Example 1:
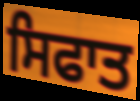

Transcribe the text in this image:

ਸਿਫਾਤ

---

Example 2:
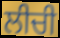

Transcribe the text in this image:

ਲੀਚੀ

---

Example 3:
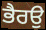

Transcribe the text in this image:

ਭੈਰਉ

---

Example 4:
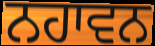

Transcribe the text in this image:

ਨਹਾਵਨ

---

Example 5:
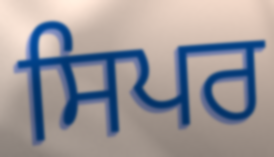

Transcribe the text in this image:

ਸਿਪਰ